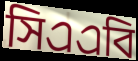
সিএএবি